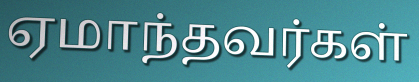
ஏமாந்தவர்கள்